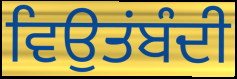
ਵਿਉਤਂਬੰਦੀ